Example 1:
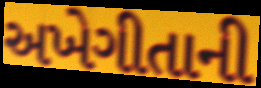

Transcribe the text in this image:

અખેગીતાની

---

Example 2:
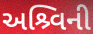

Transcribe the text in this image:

અશ્ર્વિની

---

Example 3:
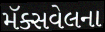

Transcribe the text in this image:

મૅક્સવેલના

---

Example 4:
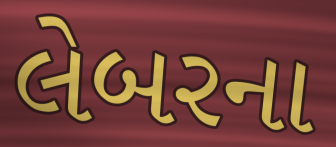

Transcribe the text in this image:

લેબરના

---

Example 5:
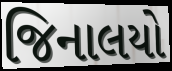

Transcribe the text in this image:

જિનાલયો